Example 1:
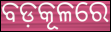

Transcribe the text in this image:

ବଡ଼କୂଳରେ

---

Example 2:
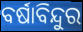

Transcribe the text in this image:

ବର୍ଷାବିନ୍ଦୁର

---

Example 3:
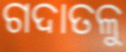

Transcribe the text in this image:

ଗଦାତଳୁ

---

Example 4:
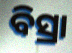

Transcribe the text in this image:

ବିସ୍ରା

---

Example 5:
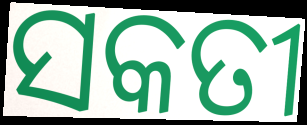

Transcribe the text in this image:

ସକତୀ